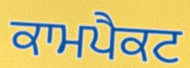
ਕਾਮਪੈਕਟ